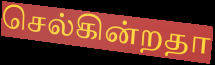
செல்கின்றதா